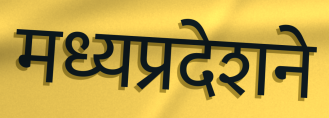
मध्यप्रदेशने